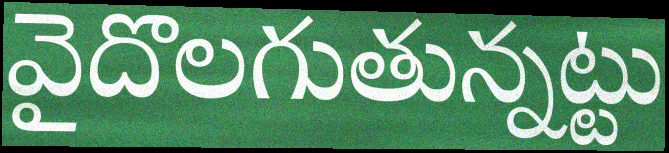
వైదొలగుతున్నట్టు